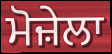
ਮੋਜ਼ੇਲਾ